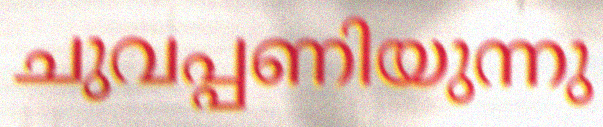
ചുവപ്പണിയുന്നു